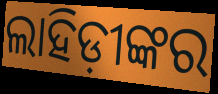
ଲାହିଡ଼ୀଙ୍କର